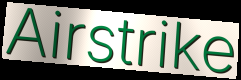
Airstrike